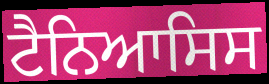
ਟੈਨਿਆਸਿਸ